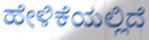
ಹೇಳಿಕೆಯಲ್ಲಿದೆ